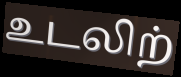
உடலிற்